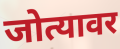
जोत्यावर